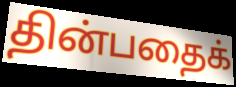
தின்பதைக்